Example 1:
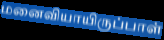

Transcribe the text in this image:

மனைவியாயிருப்பாள்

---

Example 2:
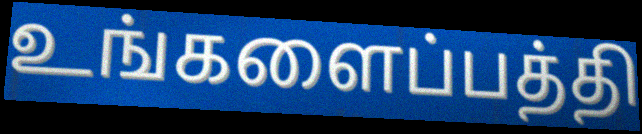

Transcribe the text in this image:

உங்களைப்பத்தி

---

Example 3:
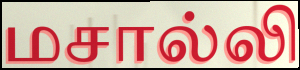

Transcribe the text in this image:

மசால்லி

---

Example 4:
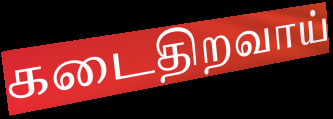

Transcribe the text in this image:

கடைதிறவாய்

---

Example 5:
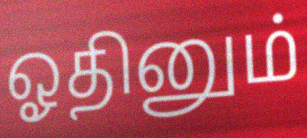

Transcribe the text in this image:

ஓதினும்